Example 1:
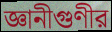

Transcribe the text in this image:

জ্ঞানীগুণীর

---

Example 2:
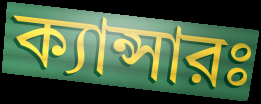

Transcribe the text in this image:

ক্যান্সারঃ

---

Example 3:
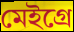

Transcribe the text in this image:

মেইগ্রে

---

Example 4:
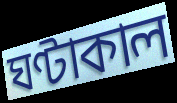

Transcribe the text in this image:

ঘণ্টাকাল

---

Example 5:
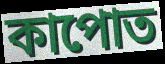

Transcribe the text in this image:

কাপোত